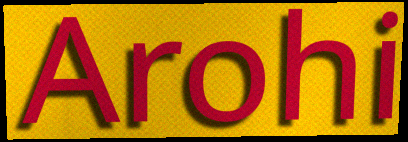
Arohi